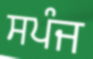
ਸਪੰਜ